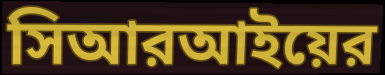
সিআরআইয়ের